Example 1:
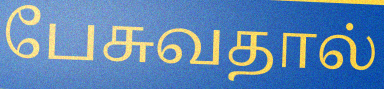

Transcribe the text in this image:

பேசுவதால்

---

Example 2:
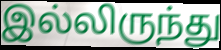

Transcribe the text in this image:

இல்லிருந்து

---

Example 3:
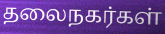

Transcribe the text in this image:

தலைநகர்கள்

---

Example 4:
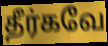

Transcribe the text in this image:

தீர்கவே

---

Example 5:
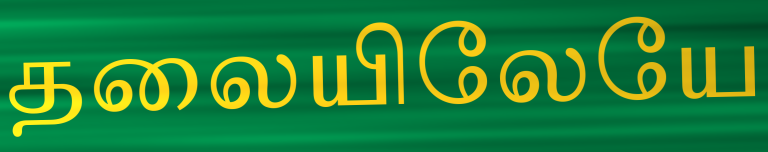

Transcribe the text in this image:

தலையிலேயே